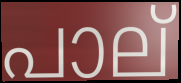
പാല്